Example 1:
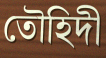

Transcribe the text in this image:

তৌহিদী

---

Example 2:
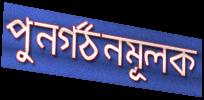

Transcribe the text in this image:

পুনর্গঠনমূলক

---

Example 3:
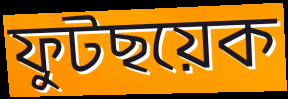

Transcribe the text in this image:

ফুটছয়েক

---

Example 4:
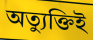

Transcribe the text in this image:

অত্যুক্তিই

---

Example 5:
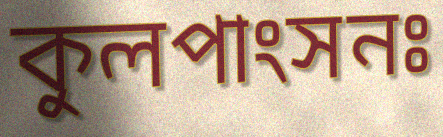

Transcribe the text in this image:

কুলপাংসনঃ